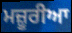
ਮਜ਼ੂਰੀਆ